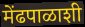
मेंढपाळाशी